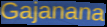
Gajanana